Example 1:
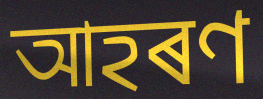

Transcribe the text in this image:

আহৰণ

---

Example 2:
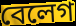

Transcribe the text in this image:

বেলেগ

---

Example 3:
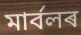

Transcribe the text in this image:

মাৰ্বলৰ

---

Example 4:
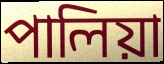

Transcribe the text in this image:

পালিয়া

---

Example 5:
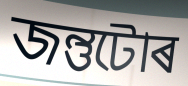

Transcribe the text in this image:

জন্তুটোৰ